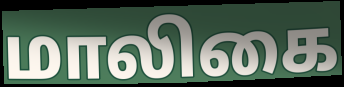
மாலிகை